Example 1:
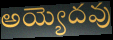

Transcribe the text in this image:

అయ్యెదవు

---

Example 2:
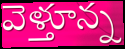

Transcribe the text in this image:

వెళ్తూన్న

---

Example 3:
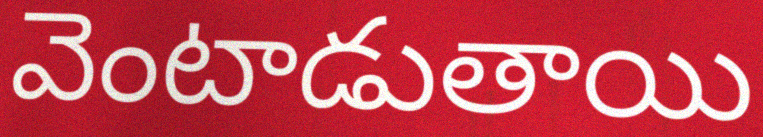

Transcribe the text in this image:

వెంటాడుతాయి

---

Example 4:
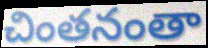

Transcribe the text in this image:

చింతనంతా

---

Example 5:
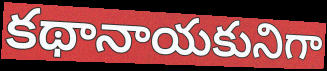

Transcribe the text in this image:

కథానాయకునిగా